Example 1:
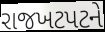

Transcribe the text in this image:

રાજખટપટને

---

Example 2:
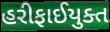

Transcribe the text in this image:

હરીફાઈયુક્ત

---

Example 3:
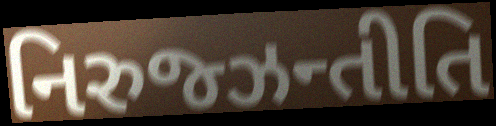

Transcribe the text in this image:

નિરુજ્ઝન્તીતિ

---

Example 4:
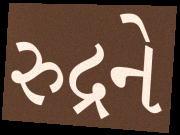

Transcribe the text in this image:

રુદ્રને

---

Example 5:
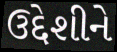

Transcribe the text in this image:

ઉદ્દેશીને